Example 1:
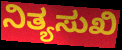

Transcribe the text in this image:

ನಿತ್ಯಸುಖಿ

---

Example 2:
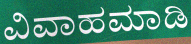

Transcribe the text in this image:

ವಿವಾಹಮಾಡಿ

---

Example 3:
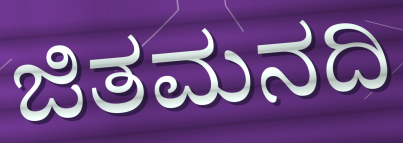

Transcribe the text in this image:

ಜಿತಮನದಿ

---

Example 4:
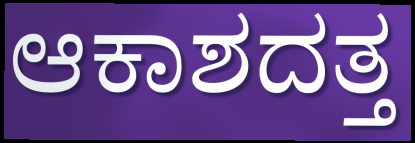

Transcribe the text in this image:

ಆಕಾಶದತ್ತ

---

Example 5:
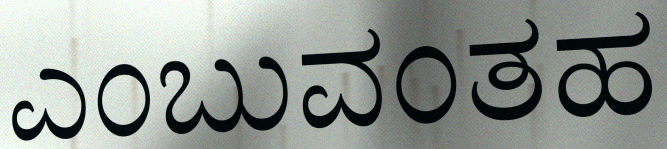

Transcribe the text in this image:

ಎಂಬುವಂತಹ